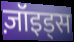
ज़ॉइड्स